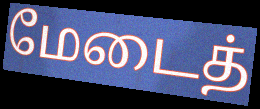
மேடைத்